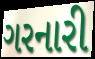
ગરનારી